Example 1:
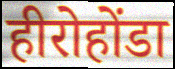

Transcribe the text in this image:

हीरोहोंडा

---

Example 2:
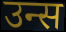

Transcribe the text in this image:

उन्स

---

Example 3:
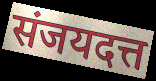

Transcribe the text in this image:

संजयदत्त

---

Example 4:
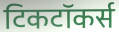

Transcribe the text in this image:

टिकटॉकर्स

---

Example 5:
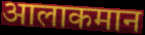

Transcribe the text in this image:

आलाकमान